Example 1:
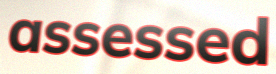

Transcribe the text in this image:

assessed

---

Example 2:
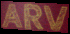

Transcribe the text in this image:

ARV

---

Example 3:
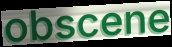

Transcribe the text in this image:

obscene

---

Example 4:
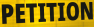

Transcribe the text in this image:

PETITION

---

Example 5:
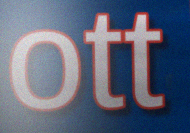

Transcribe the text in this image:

ott